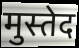
मुस्तेद